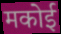
मकोई